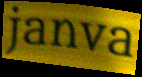
janva